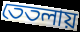
তেতলায়